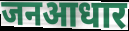
जनआधार